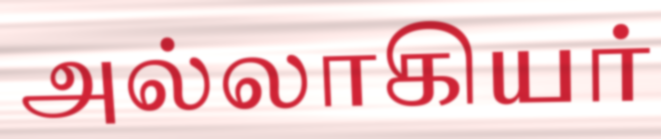
அல்லாகியர்